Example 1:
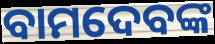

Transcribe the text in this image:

ବାମଦେବଙ୍କ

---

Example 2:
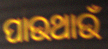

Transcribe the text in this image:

ପାଉଥାଉଁ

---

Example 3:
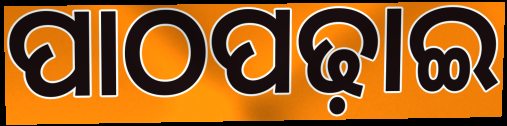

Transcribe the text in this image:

ପାଠପଢ଼ାଇ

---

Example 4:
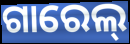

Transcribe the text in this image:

ଗାରେଲ୍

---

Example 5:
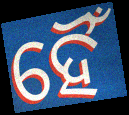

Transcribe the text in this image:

ହୈଁ